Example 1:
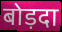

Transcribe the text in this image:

बोड़दा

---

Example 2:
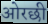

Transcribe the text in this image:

ओरछी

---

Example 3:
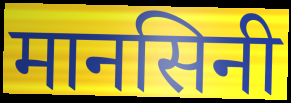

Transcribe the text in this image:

मानसिनी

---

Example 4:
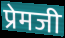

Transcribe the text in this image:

प्रेमजी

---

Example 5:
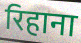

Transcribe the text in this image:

रिहाना